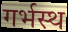
गर्भस्‍थ